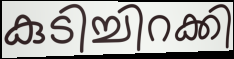
കുടിച്ചിറക്കി